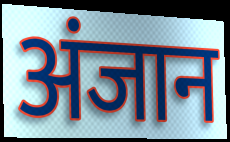
अंजान